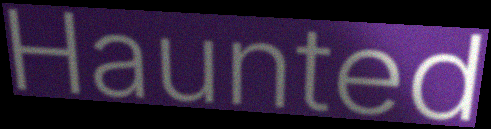
Haunted